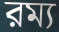
রম্য